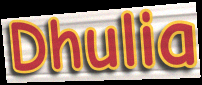
Dhulia